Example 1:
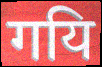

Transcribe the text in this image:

गयि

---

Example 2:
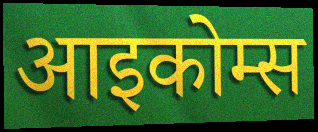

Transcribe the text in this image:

आइकोम्स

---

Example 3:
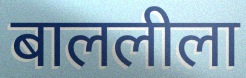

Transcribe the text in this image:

बाललीला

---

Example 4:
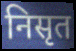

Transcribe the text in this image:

निसृत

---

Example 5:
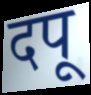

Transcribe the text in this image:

दपू